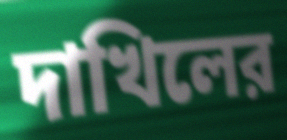
দাখিলের